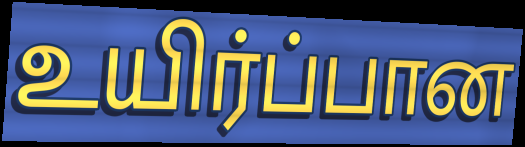
உயிர்ப்பான